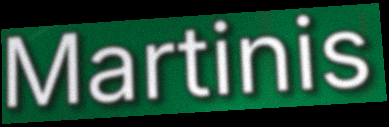
Martinis